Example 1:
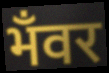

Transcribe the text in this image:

भँवर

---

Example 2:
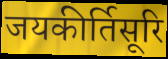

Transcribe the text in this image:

जयकीर्तिसूरि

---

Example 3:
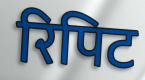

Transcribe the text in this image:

रिपिट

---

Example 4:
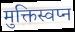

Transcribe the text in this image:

मुक्तिस्वप्न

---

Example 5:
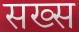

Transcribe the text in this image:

सख्स